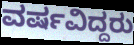
ವರ್ಷವಿದ್ದರು